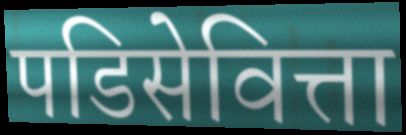
पडिसेवित्ता